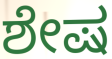
ಶೇಷ